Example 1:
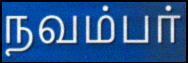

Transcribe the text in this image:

நவம்பர்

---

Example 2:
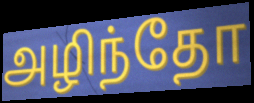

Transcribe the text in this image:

அழிந்தோ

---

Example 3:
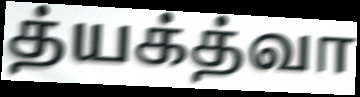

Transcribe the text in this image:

த்யக்த்வா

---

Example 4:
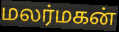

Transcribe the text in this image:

மலர்மகன்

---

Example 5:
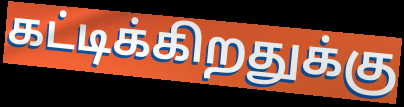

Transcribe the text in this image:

கட்டிக்கிறதுக்கு